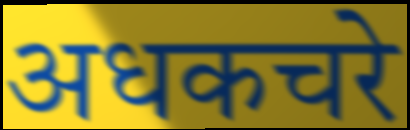
अधकचरे